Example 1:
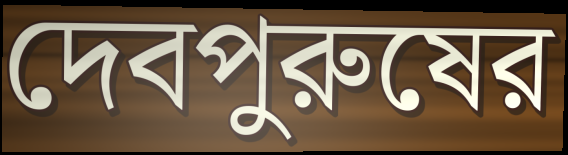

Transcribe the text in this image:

দেবপুরুষের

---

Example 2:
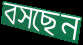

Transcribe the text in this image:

বসছেন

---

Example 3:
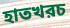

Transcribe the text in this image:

হাতখরচ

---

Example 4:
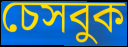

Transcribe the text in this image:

চেসবুক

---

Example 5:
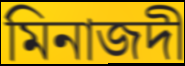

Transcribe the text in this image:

মিনাজদী